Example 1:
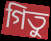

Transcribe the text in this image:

গিতু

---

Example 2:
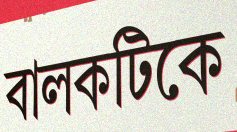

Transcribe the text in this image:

বালকটিকে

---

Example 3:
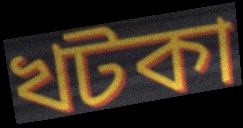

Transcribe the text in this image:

খটকা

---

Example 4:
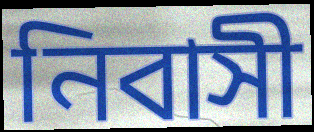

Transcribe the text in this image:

নিবাসী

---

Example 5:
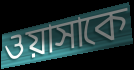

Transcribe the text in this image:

ওয়াসাকে